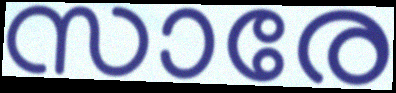
സാരേ